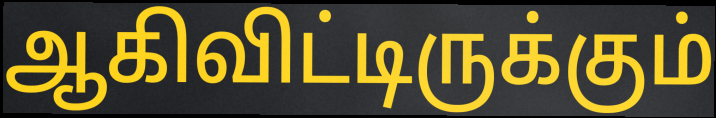
ஆகிவிட்டிருக்கும்